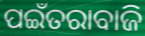
ପଇଁତରାବାଜି